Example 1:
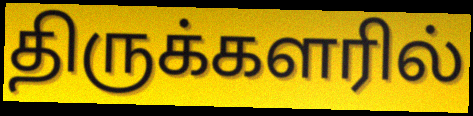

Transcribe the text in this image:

திருக்களரில்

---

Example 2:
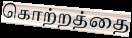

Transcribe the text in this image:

கொற்றத்தை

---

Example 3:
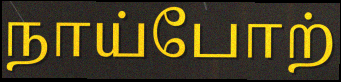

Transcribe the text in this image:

நாய்போற்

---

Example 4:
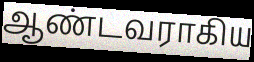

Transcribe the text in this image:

ஆண்டவராகிய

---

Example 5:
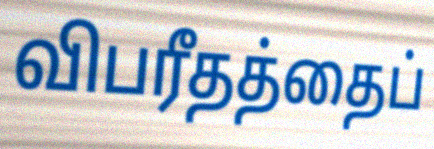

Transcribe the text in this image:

விபரீதத்தைப்